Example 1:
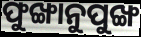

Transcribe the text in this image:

ଫୁଙ୍ଖାନୁପୁଙ୍ଖ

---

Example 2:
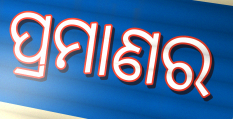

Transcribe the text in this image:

ପ୍ରମାଣର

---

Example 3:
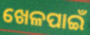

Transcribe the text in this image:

ଖେଳପାଇଁ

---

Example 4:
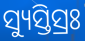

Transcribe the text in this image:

ସ୍ୟୁସ୍ତିସ୍ରଃ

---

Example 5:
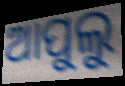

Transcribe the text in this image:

ଆପୁଲୁ